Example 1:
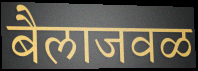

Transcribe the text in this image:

बैलाजवळ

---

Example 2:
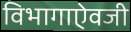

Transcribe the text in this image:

विभागाऐवजी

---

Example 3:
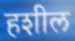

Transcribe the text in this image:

हशील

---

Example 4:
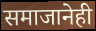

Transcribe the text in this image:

समाजानेही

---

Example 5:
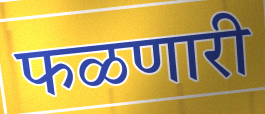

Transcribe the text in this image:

फळणारी